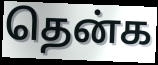
தென்க